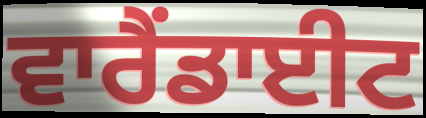
ਵਾਰੈਂਡਾਈਟ